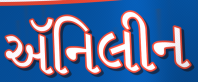
ઍનિલીન